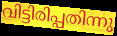
വിട്ടിരിപ്പതിന്നു